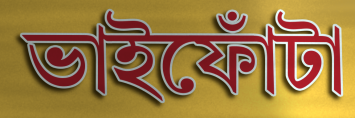
ভাইফোঁটা